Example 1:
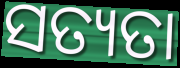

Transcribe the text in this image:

ସତ୍ୟତା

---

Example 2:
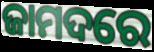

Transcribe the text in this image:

ଜାମଦରେ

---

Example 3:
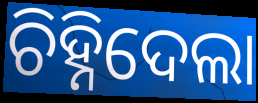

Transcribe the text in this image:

ଚିହ୍ନିଦେଲା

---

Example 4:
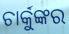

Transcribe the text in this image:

ଚାର୍କୁଙ୍କର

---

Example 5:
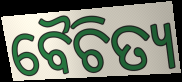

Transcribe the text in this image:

ବୈଚିତ୍ୟ